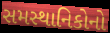
સમસ્થાનિકોનો